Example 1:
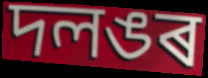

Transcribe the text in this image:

দলঙৰ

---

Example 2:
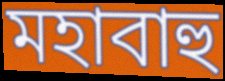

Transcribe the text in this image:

মহাবাহু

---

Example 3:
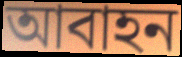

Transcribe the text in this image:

আবাহন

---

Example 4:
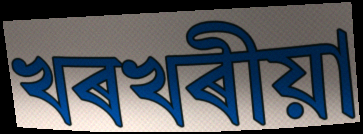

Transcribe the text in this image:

খৰখৰীয়া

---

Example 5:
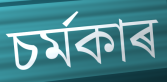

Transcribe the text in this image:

চৰ্মকাৰ